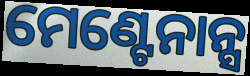
ମେଣ୍ଟେନାନ୍ସ